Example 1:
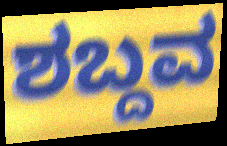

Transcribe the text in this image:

ಶಬ್ದವ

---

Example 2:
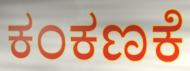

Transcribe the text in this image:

ಕಂಕಣಕೆ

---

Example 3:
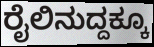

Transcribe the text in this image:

ರೈಲಿನುದ್ದಕ್ಕೂ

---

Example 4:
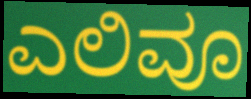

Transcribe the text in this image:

ಎಲಿವೂ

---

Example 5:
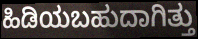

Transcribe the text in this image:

ಹಿಡಿಯಬಹುದಾಗಿತ್ತು